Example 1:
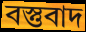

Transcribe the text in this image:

বস্তুবাদ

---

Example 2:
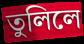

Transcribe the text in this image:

তুলিলে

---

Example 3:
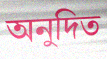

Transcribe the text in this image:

অনুদিত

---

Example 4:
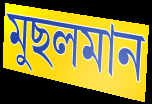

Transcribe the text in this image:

মুছলমান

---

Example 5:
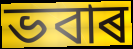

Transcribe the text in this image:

ভবাৰ